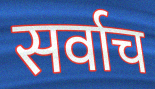
सर्वाच